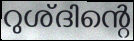
റുശ്ദിന്റെ